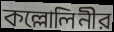
কল্লোলিনীর